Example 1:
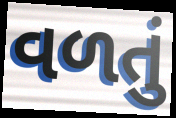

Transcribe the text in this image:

વળતું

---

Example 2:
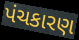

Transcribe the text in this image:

પંચકારણ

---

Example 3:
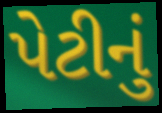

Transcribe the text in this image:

પેટીનું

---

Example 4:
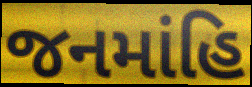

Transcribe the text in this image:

જનમાંહિ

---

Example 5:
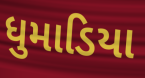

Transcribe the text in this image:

ધુમાડિયા